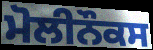
ਮੋਲੀਨੌਕਸ